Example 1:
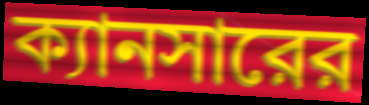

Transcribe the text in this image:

ক্যানসারের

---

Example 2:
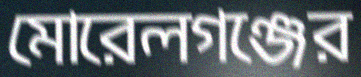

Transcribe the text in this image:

মোরেলগঞ্জের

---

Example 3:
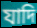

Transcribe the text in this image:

যাদি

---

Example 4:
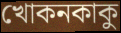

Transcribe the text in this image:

খোকনকাকু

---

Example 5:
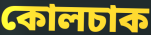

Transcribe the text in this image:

কোলচাক